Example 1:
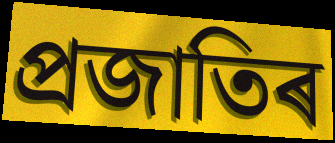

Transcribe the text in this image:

প্ৰজাতিৰ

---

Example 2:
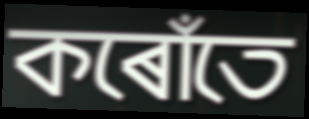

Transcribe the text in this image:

কৰোঁতে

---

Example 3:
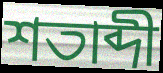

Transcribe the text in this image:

শতাব্দী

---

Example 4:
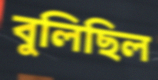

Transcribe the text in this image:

বুলিছিল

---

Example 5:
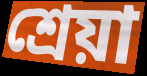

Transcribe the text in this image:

শ্ৰেয়া